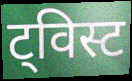
ट्विस्ट